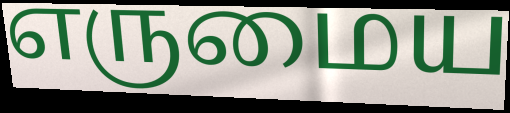
எருமைய